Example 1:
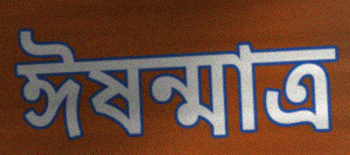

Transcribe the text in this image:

ঈষন্মাত্র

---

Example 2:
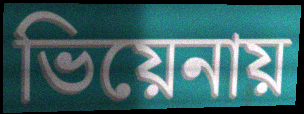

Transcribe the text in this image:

ভিয়েনায়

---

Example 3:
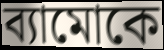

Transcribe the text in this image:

ব্যামোকে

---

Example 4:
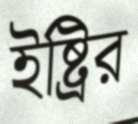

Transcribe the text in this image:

ইষ্ট্রির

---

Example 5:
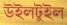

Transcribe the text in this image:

উইলটুইল